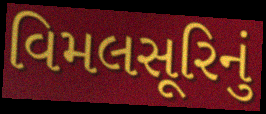
વિમલસૂરિનું